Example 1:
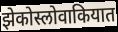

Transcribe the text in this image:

झेकोस्लोवाकियात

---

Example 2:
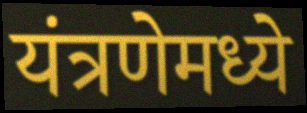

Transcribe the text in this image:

यंत्रणेमध्ये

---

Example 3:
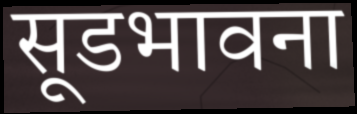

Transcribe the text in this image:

सूडभावना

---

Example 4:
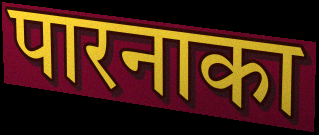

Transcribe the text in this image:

पारनाका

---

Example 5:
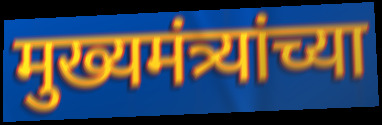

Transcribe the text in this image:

मुख्यमंत्र्यांच्या